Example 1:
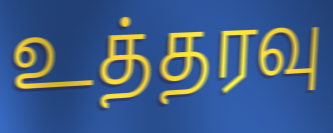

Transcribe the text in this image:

உத்தரவு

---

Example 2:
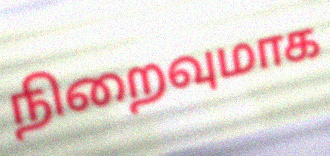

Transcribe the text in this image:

நிறைவுமாக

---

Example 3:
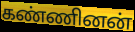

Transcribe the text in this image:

கண்ணினன்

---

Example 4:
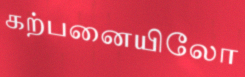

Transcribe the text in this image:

கற்பனையிலோ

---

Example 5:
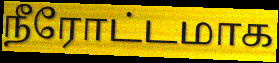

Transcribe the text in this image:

நீரோட்டமாக